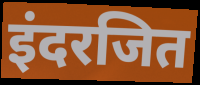
इंदरजित